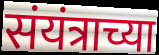
संयंत्राच्या